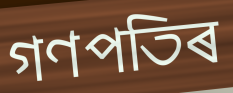
গণপতিৰ